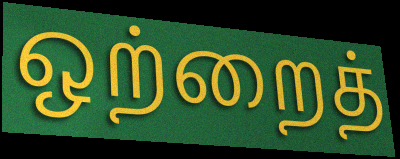
ஒற்றைத்